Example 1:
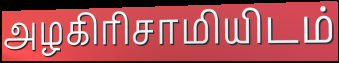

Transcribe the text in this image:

அழகிரிசாமியிடம்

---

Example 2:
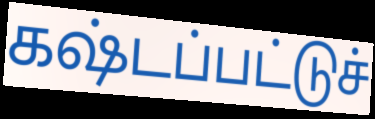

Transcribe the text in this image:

கஷ்டப்பட்டுச்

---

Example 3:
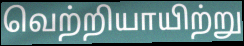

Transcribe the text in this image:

வெற்றியாயிற்று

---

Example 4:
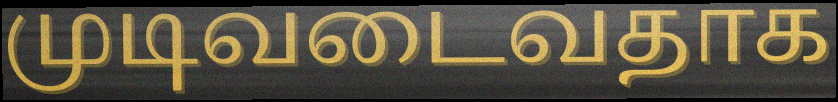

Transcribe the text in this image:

முடிவடைவதாக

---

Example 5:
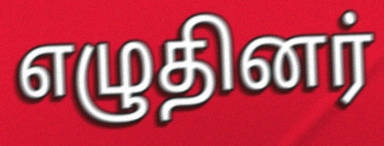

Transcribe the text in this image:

எழுதினர்